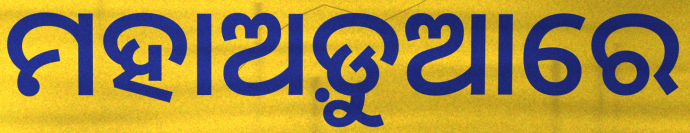
ମହାଅଡ଼ୁଆରେ